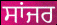
ਸਾਂਜਰ